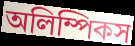
অলিম্পিকস